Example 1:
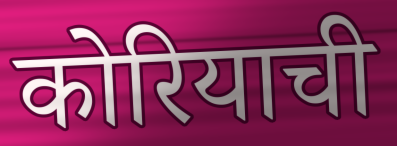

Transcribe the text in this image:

कोरियाची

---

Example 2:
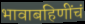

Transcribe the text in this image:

भावाबहिणींचं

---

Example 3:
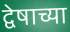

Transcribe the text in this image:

द्वेषाच्या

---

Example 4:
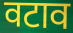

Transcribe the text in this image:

वटाव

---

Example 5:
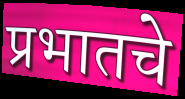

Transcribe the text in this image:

प्रभातचे